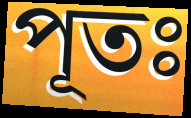
পূতঃ